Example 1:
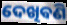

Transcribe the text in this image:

ଦେଖିବଣି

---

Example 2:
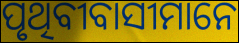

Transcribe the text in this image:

ପୃଥିବୀବାସୀମାନେ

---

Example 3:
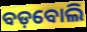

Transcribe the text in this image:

ବଡ଼ବୋଲି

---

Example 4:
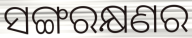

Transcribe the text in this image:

ସଙ୍ଗରକ୍ଷଣର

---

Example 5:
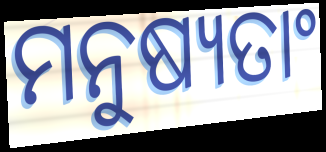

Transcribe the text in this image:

ମନୁଷ୍ୟତାଂ